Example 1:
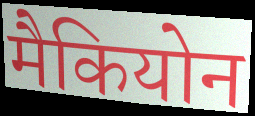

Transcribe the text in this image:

मैकियोन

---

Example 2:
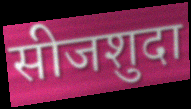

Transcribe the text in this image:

सीजशुदा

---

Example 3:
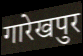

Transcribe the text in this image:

गारेखपुर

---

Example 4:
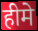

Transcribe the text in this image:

हीमे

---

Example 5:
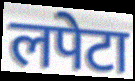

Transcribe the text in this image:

लपेटा